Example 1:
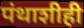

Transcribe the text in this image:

पंथाशीही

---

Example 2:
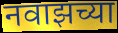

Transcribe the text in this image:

नवाझच्या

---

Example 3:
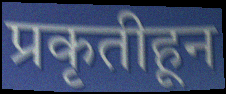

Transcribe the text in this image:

प्रकृतीहून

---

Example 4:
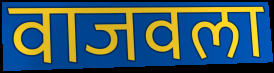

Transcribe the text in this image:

वाजवला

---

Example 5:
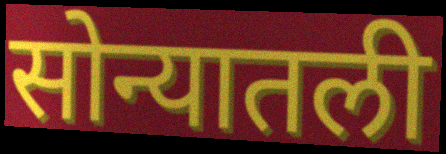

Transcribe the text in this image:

सोन्यातली